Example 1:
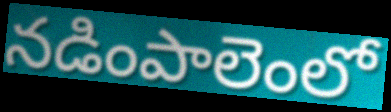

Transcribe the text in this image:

నడింపాలెంలో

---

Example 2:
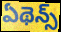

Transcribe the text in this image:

ఏథెన్స్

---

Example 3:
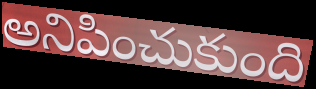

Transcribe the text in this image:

అనిపించుకుంది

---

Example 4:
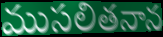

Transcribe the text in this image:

ముసలితనాన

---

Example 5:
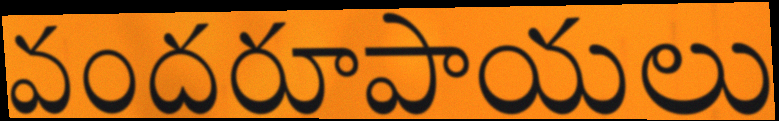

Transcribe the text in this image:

వందరూపాయలు